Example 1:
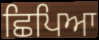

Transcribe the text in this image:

ਛਿਪਿਆ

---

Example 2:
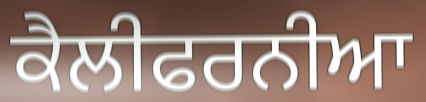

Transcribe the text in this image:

ਕੈਲੀਫਰਨੀਆ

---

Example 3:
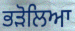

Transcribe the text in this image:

ਭੜੋਲਿਆ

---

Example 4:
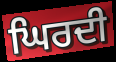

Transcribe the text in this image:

ਘਿਰਦੀ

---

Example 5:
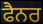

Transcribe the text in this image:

ਫੈਨਰ